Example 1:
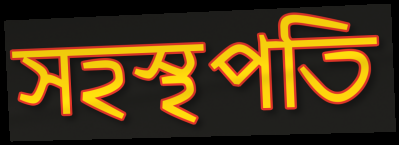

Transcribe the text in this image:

সহস্থপতি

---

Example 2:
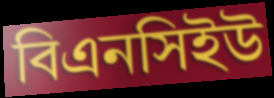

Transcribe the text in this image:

বিএনসিইউ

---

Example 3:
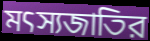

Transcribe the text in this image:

মৎস্যজাতির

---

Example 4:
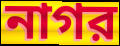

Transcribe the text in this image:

নাগর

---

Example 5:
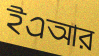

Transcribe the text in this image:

ইএআর